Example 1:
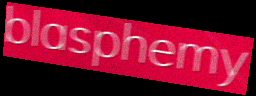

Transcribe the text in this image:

blasphemy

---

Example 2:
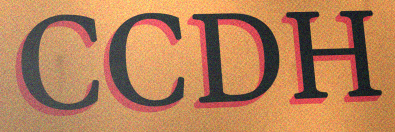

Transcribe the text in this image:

CCDH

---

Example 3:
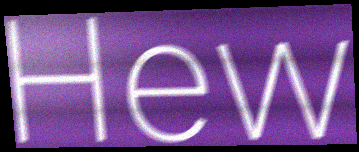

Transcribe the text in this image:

Hew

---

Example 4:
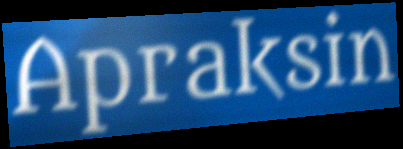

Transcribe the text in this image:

Apraksin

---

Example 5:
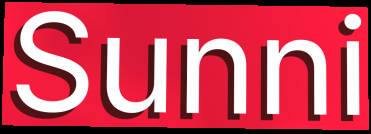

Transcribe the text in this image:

Sunni